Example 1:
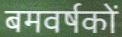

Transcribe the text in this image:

बमवर्षकों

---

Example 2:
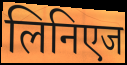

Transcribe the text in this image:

लिनिएज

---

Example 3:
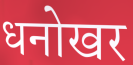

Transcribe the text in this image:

धनोखर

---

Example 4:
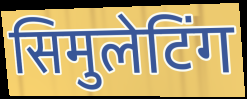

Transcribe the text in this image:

सिमुलेटिंग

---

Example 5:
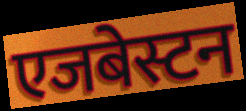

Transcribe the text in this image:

एजबेस्टन